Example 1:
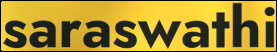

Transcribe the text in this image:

saraswathi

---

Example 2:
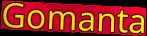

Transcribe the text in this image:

Gomanta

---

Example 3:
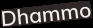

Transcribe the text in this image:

Dhammo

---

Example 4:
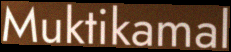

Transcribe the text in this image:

Muktikamal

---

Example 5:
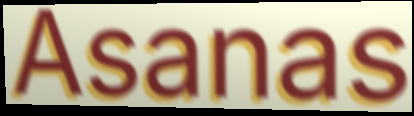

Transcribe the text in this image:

Asanas